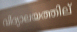
വിദ്യാലയത്തില്